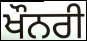
ਖੌਨਰੀ